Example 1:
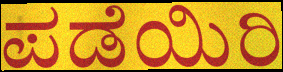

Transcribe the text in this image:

ಪಡೆಯಿರಿ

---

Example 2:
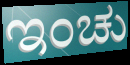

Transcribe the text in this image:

ಇಂಚು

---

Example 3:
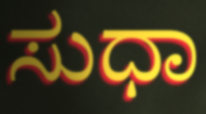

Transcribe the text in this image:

ಸುಧಾ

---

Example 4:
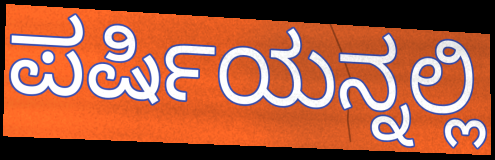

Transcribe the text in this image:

ಪರ್ಷಿಯನ್ನಲ್ಲಿ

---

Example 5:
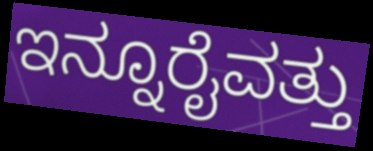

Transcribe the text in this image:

ಇನ್ನೂರೈವತ್ತು